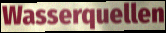
Wasserquellen